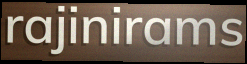
rajinirams